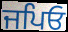
ਜਪਿਓ